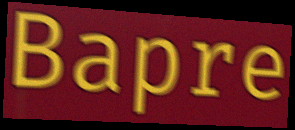
Bapre